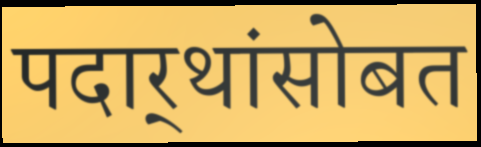
पदार्थांसोबत